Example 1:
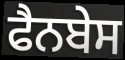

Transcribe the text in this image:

ਫੈਨਬੇਸ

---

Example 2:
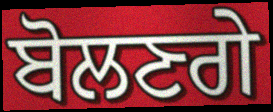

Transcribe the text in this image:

ਬੋਲਣਗੇ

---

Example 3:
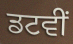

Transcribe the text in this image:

ਡਟਵੀਂ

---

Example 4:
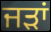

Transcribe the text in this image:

ਜੜਾਂ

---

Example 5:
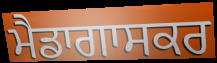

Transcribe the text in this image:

ਮੈਡਾਗਾਸਕਰ